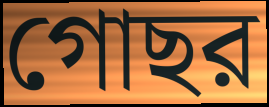
গোছর